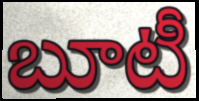
బూటీ